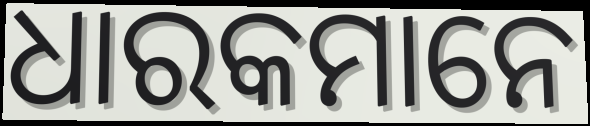
ଧାରକମାନେ